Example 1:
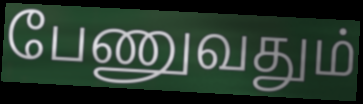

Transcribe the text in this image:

பேணுவதும்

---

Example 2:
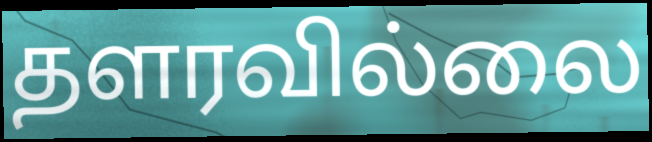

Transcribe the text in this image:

தளரவில்லை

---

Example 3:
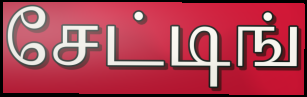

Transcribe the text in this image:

சேட்டிங்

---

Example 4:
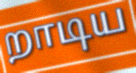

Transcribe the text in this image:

றாடிய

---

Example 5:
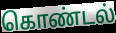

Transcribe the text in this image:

கொண்டல்